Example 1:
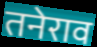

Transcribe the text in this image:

तनेराव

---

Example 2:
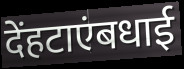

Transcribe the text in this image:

देंहटाएंबधाई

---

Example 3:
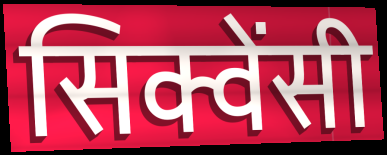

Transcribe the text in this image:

सिक्वेंसी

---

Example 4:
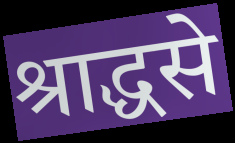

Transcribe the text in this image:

श्राद्धसे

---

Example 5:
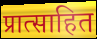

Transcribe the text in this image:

प्रात्साहित